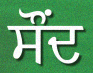
ਸੌਂਦ